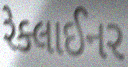
રેક્લાઈનર